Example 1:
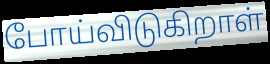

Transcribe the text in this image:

போய்விடுகிறாள்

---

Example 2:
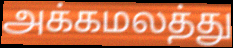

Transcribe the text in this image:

அக்கமலத்து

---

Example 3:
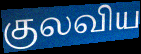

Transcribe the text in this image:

குலவிய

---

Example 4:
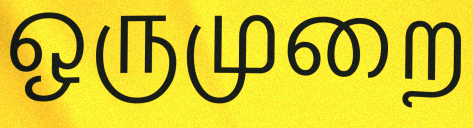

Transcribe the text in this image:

ஒருமுறை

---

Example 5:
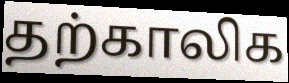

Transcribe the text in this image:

தற்காலிக